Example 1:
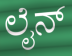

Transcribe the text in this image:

ಲೈನ್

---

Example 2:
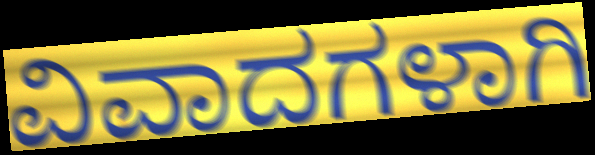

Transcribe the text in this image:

ವಿವಾದಗಳಾಗಿ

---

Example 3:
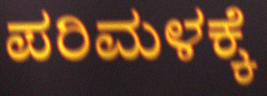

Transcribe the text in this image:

ಪರಿಮಳಕ್ಕೆ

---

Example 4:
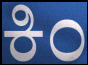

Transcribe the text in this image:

ಕಿಂ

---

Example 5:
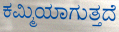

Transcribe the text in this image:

ಕಮ್ಮಿಯಾಗುತ್ತದೆ